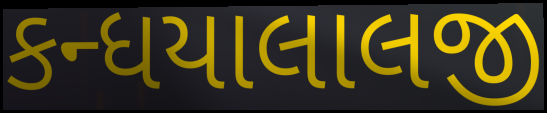
કન્ધયાલાલજી